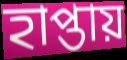
হাপ্তায়